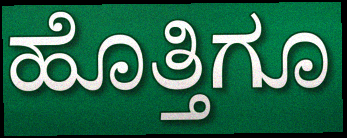
ಹೊತ್ತಿಗೂ